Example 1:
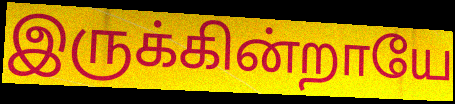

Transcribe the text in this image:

இருக்கின்றாயே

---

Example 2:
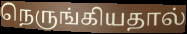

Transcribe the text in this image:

நெருங்கியதால்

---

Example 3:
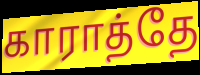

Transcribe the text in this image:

காராத்தே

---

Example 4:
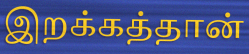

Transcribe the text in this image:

இறக்கத்தான்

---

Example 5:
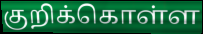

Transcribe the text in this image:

குறிக்கொள்ள